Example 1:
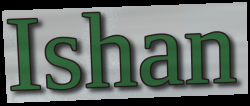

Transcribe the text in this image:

Ishan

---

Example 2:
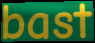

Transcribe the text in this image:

bast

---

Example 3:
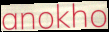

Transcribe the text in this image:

anokho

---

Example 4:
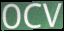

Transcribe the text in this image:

OCV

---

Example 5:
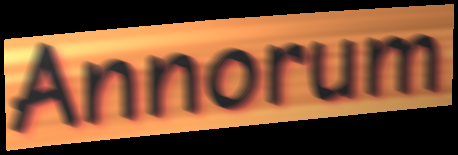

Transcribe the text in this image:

Annorum